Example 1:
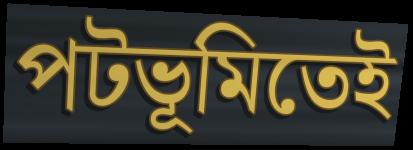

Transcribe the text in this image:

পটভূমিতেই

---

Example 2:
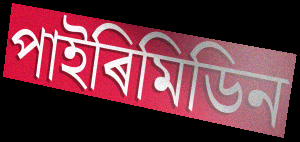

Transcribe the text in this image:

পাইৰিমিডিন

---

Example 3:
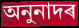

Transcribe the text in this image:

অনুনাদৰ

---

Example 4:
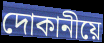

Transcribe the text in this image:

দোকানীয়ে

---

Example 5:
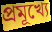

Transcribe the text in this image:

প্ৰমূখ্যে